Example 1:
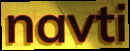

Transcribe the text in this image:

navti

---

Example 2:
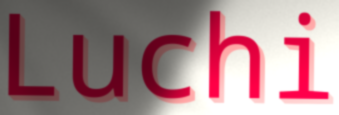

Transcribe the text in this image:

Luchi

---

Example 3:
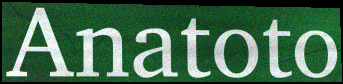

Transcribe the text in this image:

Anatoto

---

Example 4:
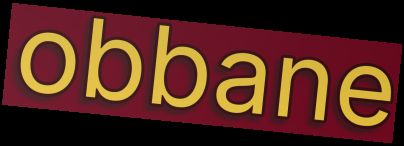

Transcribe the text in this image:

obbane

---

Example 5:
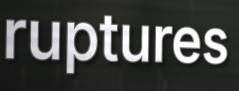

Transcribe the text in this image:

ruptures